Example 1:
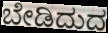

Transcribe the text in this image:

ಬೇಡಿದುದ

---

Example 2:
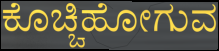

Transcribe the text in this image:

ಕೊಚ್ಚಿಹೋಗುವ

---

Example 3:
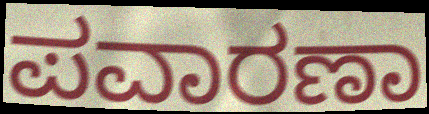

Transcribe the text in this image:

ಪವಾರಣಾ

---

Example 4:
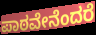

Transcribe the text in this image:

ಪಾಠವೇನೆಂದರೆ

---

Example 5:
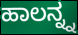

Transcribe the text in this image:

ಹಾಲನ್ನ್ನ